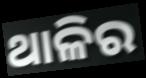
ଥାଳିର